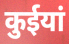
कुईयां